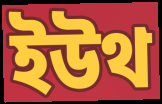
ইউথ